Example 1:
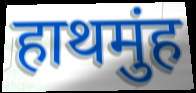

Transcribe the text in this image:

हाथमुंह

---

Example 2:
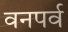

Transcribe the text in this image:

वनपर्व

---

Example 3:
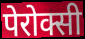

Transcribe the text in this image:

पेरोक्सी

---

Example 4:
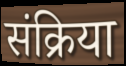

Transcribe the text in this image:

संक्रिया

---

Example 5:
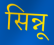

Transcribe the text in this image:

सिन्नू